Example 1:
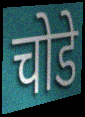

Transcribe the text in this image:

चोडे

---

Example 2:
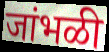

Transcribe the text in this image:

जांभळी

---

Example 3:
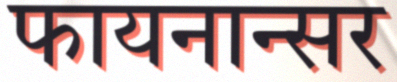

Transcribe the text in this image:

फायनान्सर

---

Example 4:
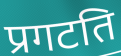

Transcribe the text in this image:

प्रगटति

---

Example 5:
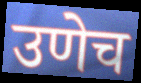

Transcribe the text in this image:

उणेच